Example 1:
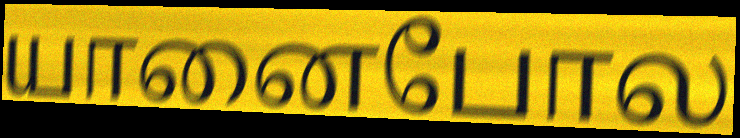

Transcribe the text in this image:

யானைபோல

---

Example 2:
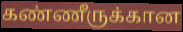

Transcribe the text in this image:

கண்ணீருக்கான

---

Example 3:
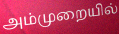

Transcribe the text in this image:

அம்முறையில்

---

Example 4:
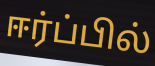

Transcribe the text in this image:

ஈர்ப்பில்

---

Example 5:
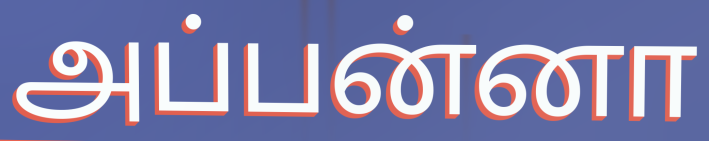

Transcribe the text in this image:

அப்பன்னா